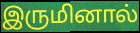
இருமினால்